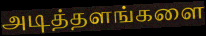
அடித்தளங்களை